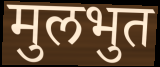
मुलभुत